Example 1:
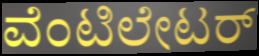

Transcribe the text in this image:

ವೆಂಟಿಲೇಟರ್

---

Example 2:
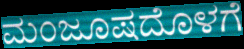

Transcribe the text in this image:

ಮಂಜೂಷದೊಳಗೆ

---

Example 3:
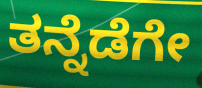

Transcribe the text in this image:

ತನ್ನೆಡೆಗೇ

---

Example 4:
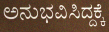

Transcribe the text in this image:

ಅನುಭವಿಸಿದ್ದಕ್ಕೆ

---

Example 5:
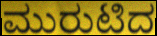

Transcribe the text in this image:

ಮುರುಟಿದ